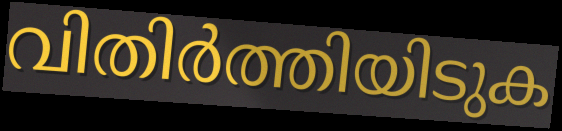
വിതിർത്തിയിടുക